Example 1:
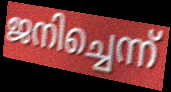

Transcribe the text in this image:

ജനിച്ചെന്ന്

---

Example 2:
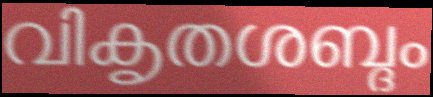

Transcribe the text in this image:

വികൃതശബ്ദം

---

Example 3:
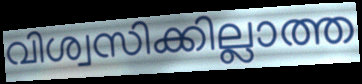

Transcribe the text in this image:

വിശ്വസിക്കില്ലാത്ത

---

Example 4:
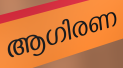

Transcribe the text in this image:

ആഗിരണ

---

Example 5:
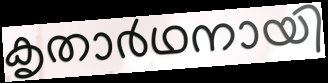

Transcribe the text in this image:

കൃതാർഥനായി